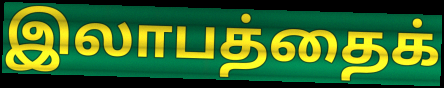
இலாபத்தைக்